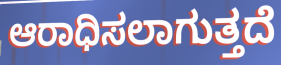
ಆರಾಧಿಸಲಾಗುತ್ತದೆ